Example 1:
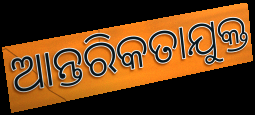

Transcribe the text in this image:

ଆନ୍ତରିକତାଯୁକ୍ତ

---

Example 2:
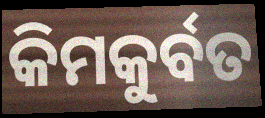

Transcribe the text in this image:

କିମକୁର୍ବତ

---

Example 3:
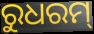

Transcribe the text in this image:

ରୁଧରମ୍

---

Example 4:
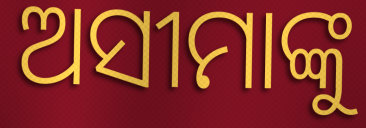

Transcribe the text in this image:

ଅସୀମାଙ୍କୁ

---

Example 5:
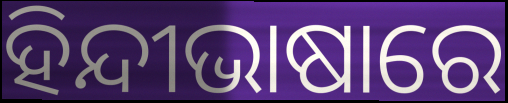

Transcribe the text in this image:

ହିନ୍ଦୀଭାଷାରେ